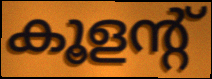
കൂളന്റ്